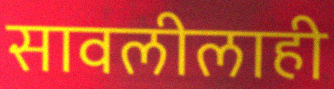
सावलीलाही